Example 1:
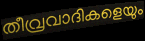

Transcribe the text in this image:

തീവ്രവാദികളെയും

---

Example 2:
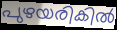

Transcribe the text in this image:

പുഴയരികിൽ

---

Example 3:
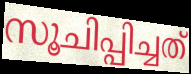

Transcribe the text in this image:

സൂചിപ്പിച്ചത്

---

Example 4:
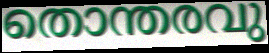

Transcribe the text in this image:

തൊന്തരവു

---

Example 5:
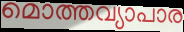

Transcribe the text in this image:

മൊത്തവ്യാപാര